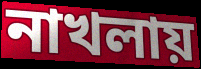
নাখলায়